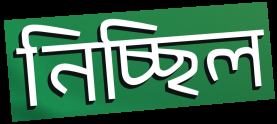
নিচ্ছিল